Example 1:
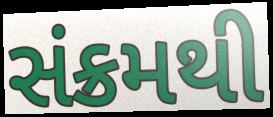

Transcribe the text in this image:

સંક્રમથી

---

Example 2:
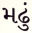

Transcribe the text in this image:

મઢું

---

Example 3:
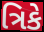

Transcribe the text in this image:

ત્રિકે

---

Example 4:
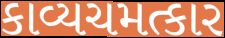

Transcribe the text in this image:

કાવ્યચમત્કાર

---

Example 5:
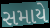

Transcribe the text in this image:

સમાયે